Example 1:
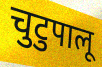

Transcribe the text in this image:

चुटुपालू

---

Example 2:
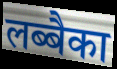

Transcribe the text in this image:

लब्बैका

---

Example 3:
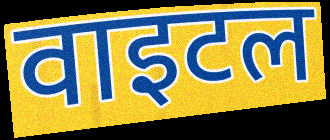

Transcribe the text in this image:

वाइटल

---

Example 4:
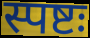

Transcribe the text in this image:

स्पष्टः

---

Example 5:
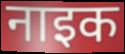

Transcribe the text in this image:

नाइक